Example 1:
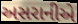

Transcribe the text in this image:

અસરાનીએ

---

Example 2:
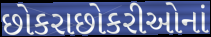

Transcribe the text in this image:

છોકરાછોકરીઓનાં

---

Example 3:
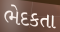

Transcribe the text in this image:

ભેદકતા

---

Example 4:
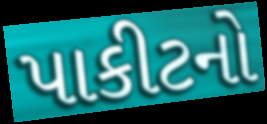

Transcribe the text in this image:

પાકીટનો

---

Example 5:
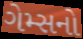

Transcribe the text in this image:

ગેમ્સનો